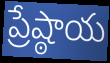
ప్రేష్ఠాయ